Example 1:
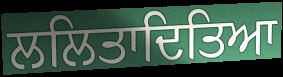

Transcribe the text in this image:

ਲਲਿਤਾਦਿਤਿਆ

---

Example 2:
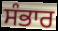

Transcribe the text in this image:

ਸੰਭਾਰ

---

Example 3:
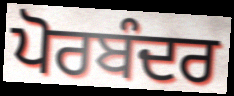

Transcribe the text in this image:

ਪੋਰਬੰਦਰ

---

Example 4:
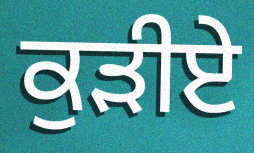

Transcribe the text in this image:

ਕੁੜੀਏ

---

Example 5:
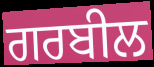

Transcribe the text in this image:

ਗਰਬੀਲ